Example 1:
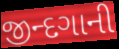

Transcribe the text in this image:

જીન્દગાની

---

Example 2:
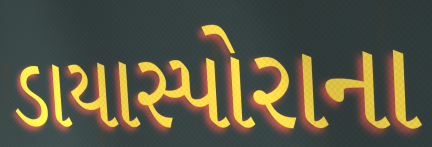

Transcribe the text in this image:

ડાયાસ્પોરાના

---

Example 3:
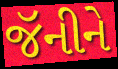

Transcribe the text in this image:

જૅનીને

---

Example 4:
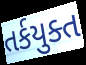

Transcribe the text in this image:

તર્કયુક્ત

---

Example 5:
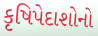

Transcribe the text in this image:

કૃષિપેદાશોનો